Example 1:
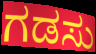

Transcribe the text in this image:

ಗಡಸು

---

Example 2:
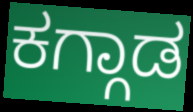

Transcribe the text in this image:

ಕಗ್ಗಾಡ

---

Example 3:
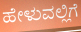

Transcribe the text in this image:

ಹೇಳುವಲ್ಲಿಗೆ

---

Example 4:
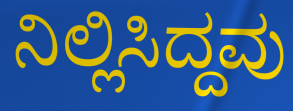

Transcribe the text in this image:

ನಿಲ್ಲಿಸಿದ್ದವು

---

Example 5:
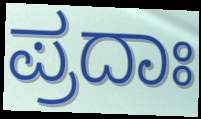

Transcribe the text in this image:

ಪ್ರದಾಃ